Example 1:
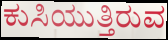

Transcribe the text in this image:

ಕುಸಿಯುತ್ತಿರುವ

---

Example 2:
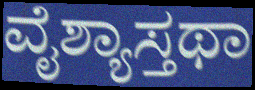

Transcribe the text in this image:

ವೈಶ್ಯಾಸ್ತಥಾ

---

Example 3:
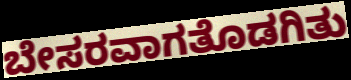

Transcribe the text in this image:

ಬೇಸರವಾಗತೊಡಗಿತು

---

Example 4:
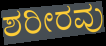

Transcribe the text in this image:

ಶರೀರವು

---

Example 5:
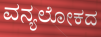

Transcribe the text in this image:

ವನ್ಯಲೋಕದ